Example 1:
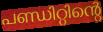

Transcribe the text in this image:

പണ്ഡിറ്റിന്റെ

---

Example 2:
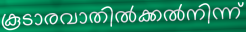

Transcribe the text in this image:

കൂടാരവാതിൽക്കൽനിന്ന്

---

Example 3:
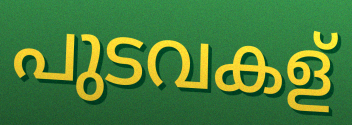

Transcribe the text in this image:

പുടവകള്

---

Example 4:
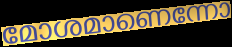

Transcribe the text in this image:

മോശമാണെന്നോ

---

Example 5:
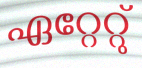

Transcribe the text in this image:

ഏറ്റേറ്റു്